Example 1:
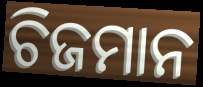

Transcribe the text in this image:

ଚିଜମାନ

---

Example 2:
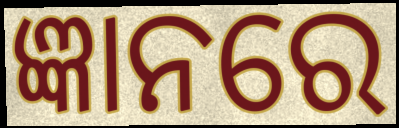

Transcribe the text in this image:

ଜ୍ଞାନରେ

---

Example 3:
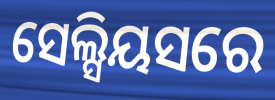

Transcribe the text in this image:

ସେଲ୍ସିୟସରେ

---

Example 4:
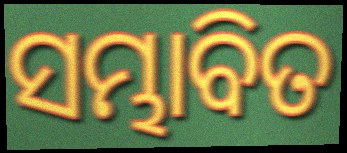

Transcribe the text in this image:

ସମ୍ଭାବିତ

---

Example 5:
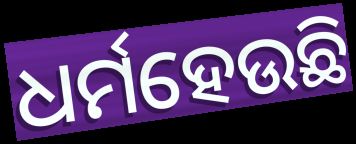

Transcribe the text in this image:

ଧର୍ମହେଉଛି